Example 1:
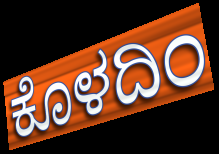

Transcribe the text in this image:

ಕೊಳದಿಂ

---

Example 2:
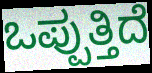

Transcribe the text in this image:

ಒಪ್ಪುತ್ತಿದೆ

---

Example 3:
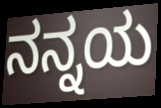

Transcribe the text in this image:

ನನ್ನಯ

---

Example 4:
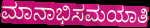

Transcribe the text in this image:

ಮಾನಾಭಿಸಮಯಾತಿ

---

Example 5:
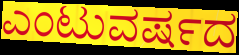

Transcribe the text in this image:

ಎಂಟುವರ್ಷದ